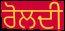
ਰੋਲਦੀ